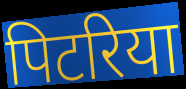
पिटरिया